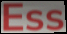
Ess